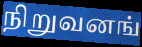
நிறுவனங்